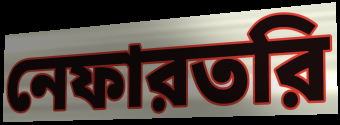
নেফারতরি